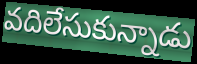
వదిలేసుకున్నాడు